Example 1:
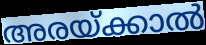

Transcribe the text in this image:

അരയ്ക്കാൽ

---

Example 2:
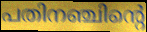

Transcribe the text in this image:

പതിനഞ്ചിന്റെ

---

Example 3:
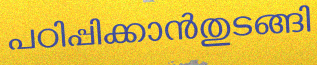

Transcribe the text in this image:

പഠിപ്പിക്കാൻതുടങ്ങി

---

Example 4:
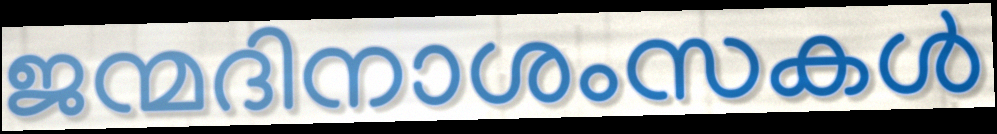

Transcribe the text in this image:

ജന്മദിനാശംസകൾ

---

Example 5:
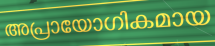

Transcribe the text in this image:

അപ്രായോഗികമായ